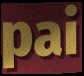
pai